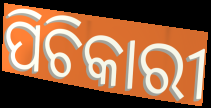
ପିଚିକାରୀ